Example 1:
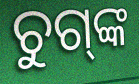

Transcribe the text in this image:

ଚୁଗ୍‌ଙ୍କ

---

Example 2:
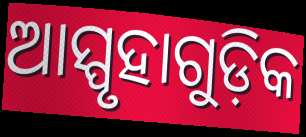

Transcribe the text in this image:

ଆସ୍ପୃହାଗୁଡ଼ିକ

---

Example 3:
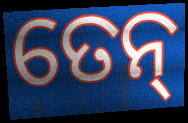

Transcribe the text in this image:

ତେନ୍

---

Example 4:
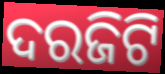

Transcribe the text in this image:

ଦରଜିଟି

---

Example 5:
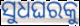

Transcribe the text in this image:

ସୁଧଘରକୁ